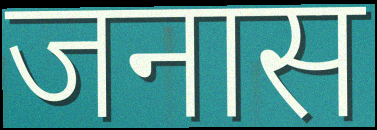
जनास